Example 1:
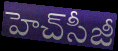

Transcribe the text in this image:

హెచ్‌సీజీ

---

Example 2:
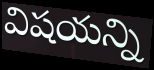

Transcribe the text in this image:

విషయన్ని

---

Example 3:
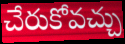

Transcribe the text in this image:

చేరుకోవచ్చు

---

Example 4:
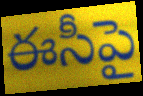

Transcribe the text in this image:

ఈసీపై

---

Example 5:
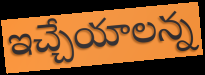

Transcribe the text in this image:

ఇచ్చేయాలన్న